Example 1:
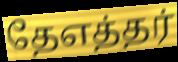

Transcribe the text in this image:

தேஎத்தர்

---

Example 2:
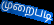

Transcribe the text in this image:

முறைபடி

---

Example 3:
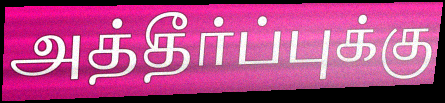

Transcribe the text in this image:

அத்தீர்ப்புக்கு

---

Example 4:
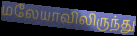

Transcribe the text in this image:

மலேயாவிலிருந்து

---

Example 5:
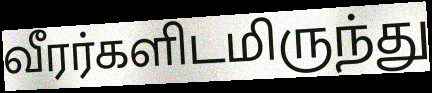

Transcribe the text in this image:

வீரர்களிடமிருந்து